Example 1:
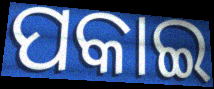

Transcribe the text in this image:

ପକାଇ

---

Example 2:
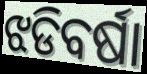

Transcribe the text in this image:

ଝଡିବର୍ଷା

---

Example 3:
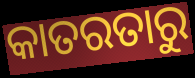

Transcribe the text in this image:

କାତରତାରୁ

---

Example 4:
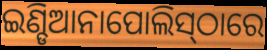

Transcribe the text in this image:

ଇଣ୍ଡିଆନାପୋଲିସ୍‍ଠାରେ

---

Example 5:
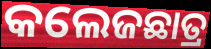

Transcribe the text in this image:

କଲେଜଛାତ୍ର